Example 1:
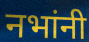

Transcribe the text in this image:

नभांनी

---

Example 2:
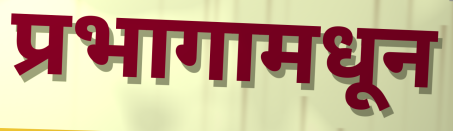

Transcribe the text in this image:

प्रभागामधून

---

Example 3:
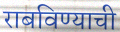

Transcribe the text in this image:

राबविण्याची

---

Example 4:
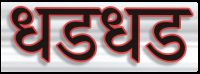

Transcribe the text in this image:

धडधड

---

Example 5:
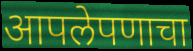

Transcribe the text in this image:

आपलेपणाचा